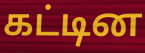
கட்டின